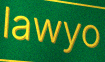
lawyo